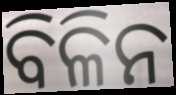
ବିଳିନ